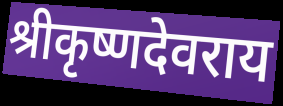
श्रीकृष्णदेवराय